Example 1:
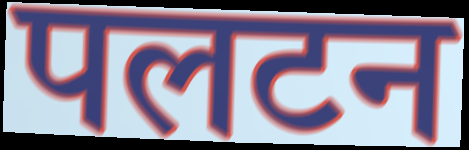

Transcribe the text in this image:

पलटन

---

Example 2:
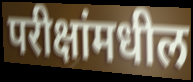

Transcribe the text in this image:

परीक्षांमधील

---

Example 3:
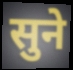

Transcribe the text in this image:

सुने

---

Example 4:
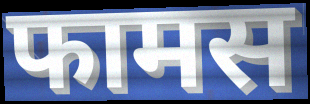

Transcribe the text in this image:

फामस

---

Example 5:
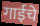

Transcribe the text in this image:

गाईचे